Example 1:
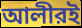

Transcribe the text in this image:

আলীরই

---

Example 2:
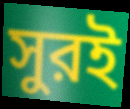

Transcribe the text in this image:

সুরই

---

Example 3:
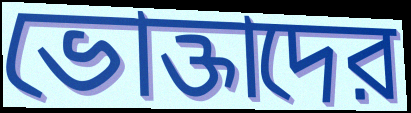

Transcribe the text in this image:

ভোক্তাদের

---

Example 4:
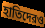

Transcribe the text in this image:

হাতিদেরও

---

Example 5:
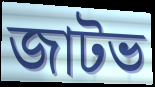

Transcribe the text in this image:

জাটভ